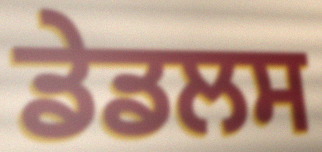
ਡੇਡਲਸ